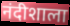
नंदीशाला